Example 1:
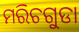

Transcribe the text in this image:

ମରିଚଗୁଡା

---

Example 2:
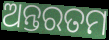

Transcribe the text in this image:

ଅନ୍ତରତମ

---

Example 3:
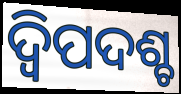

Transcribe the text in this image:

ଦ୍ବିପଦଶ୍ଚ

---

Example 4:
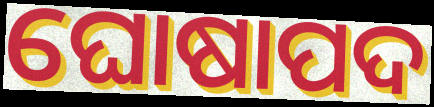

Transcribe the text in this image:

ଘୋଷାପଦ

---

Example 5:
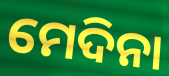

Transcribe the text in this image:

ମେଦିନା